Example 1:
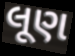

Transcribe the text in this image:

લૂણ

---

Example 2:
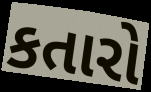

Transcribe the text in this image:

કતારો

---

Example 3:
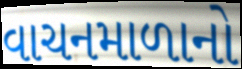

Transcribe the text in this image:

વાચનમાળાનો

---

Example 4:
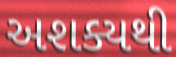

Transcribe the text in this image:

અશક્યથી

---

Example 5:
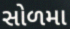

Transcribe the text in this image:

સોળમા